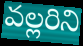
వల్లరిని